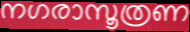
നഗരാസൂത്രണ